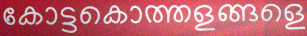
കോട്ടകൊത്തളങ്ങളെ